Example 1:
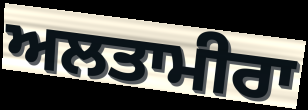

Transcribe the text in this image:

ਅਲਤਾਮੀਰਾ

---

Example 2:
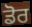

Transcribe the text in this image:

ਡੋਰ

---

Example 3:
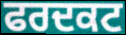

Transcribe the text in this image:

ਫਰਦਕਟ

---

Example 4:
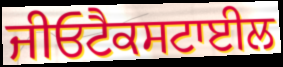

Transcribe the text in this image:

ਜੀਓਟੈਕਸਟਾਈਲ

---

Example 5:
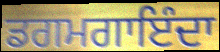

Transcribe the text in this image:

ਡਗਮਗਾਇੰਦਾ